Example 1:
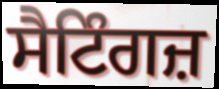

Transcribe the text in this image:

ਸੈਟਿੰਗਜ਼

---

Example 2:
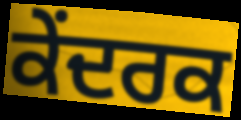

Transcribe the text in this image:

ਕੇਂਦਰਕ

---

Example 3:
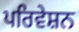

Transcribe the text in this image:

ਪਰਿਵੇਸ਼ਨ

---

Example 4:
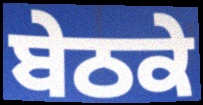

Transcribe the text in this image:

ਬੇਠਕੇ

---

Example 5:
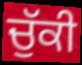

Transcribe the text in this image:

ਚੁੱਕੀ